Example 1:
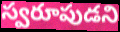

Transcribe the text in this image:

స్వరూపుడని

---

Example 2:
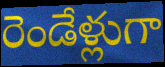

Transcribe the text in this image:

రెండేళ్లుగా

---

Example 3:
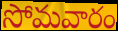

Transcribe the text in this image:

సోమవారం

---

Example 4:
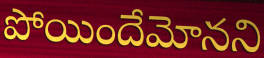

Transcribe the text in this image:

పోయిందేమోనని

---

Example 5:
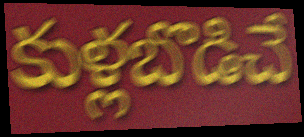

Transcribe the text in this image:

కుళ్లబొడిచే